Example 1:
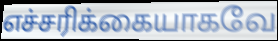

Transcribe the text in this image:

எச்சரிக்கையாகவே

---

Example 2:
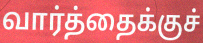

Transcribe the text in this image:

வார்த்தைக்குச்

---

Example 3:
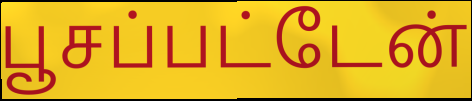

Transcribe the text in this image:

பூசப்பட்டேன்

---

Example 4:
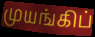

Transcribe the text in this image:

முயங்கிப்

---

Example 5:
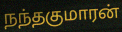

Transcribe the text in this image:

நந்தகுமாரன்